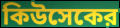
কিউসেকের